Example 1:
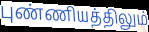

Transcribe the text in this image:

புண்ணியத்திலும்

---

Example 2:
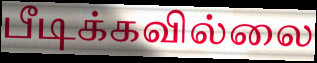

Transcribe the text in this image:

பீடிக்கவில்லை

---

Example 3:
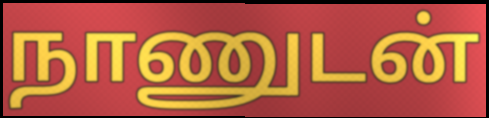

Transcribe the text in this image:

நாணுடன்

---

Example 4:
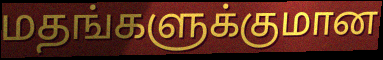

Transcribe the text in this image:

மதங்களுக்குமான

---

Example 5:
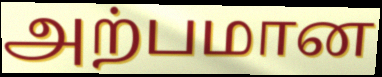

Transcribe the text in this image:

அற்பமான